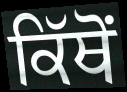
ਕਿੱਥੋੰ